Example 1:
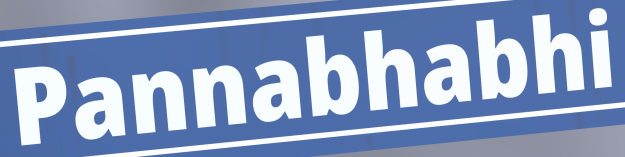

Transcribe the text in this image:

Pannabhabhi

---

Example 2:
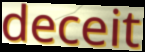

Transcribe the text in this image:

deceit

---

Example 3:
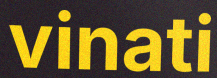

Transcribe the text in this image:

vinati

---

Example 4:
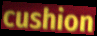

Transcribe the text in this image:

cushion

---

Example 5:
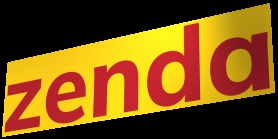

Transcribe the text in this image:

zenda